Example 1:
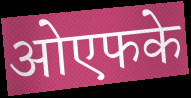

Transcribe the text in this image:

ओएफके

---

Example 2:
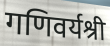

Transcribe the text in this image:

गणिवर्यश्री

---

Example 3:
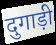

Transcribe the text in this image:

दुगाड़ी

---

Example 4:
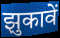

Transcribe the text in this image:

झुकावें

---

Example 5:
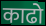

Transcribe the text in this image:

काढो